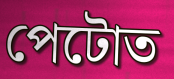
পেটোত